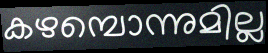
കഴമ്പൊന്നുമില്ല